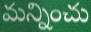
మన్నించు